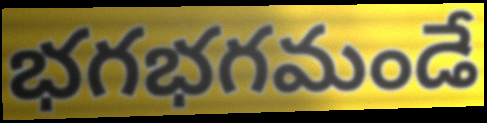
భగభగమండే